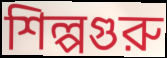
শিল্পগুরু